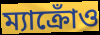
ম্যাক্রোঁও